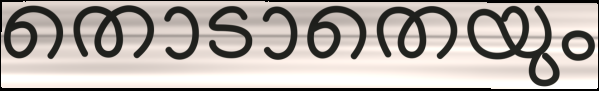
തൊടാതെയും